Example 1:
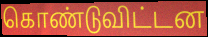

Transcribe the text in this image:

கொண்டுவிட்டன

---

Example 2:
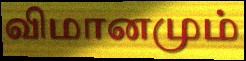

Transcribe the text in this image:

விமானமும்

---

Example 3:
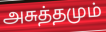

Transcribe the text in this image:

அசுத்தமும்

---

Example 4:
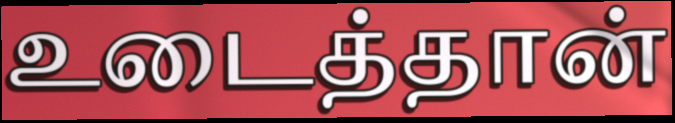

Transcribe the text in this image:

உடைத்தான்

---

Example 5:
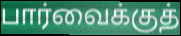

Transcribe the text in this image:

பார்வைக்குத்